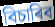
বিচাৰিব